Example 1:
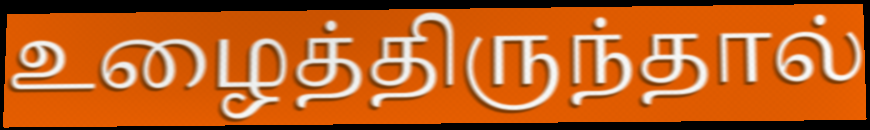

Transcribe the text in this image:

உழைத்திருந்தால்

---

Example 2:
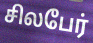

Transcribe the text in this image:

சிலபேர்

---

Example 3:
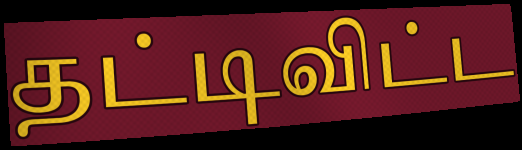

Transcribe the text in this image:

தட்டிவிட்ட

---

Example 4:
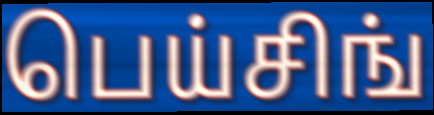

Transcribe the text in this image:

பெய்சிங்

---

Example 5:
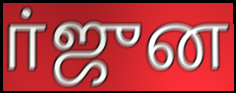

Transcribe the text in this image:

ர்ஜுன